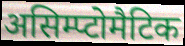
असिम्प्टोमैटिक